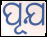
ପୂଯ